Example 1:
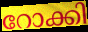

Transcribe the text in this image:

റോക്കി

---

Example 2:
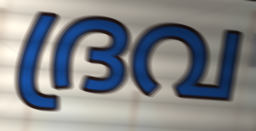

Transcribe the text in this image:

ദ്രവ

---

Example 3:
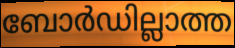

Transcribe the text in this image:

ബോർഡില്ലാത്ത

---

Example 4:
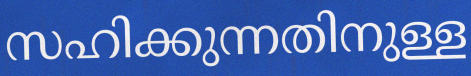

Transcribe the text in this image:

സഹിക്കുന്നതിനുള്ള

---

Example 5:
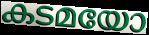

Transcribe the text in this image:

കടമയോ